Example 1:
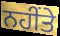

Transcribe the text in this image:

ਨਹੀਂਤੇ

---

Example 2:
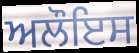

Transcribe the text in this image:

ਅਲੌਇਸ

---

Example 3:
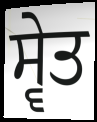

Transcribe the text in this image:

ਸ੍ਵੇਤ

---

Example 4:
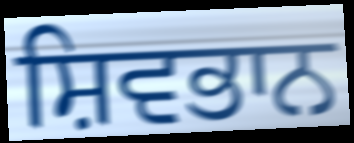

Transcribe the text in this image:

ਸ਼ਿਵਭਾਨ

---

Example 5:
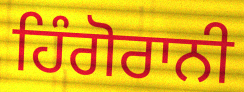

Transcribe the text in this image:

ਹਿੰਗੋਰਾਨੀ